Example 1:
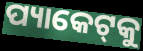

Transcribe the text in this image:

ପ୍ୟାକେଟ୍‌କୁ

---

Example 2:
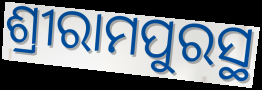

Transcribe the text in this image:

ଶ୍ରୀରାମପୁରସ୍ଥ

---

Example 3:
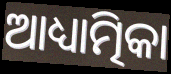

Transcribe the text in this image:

ଆଧ୍ୟାତ୍ମିକା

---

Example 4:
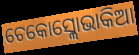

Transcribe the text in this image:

ଚେକୋସ୍ଲୋଭାକିଆ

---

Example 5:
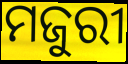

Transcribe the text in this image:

ମଜୁରୀ